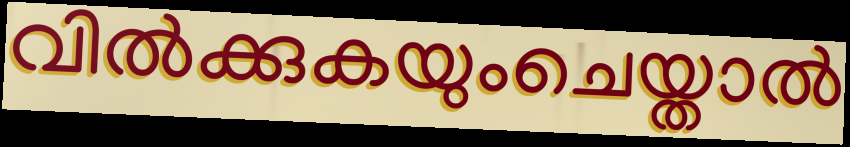
വിൽക്കുകയുംചെയ്താൽ